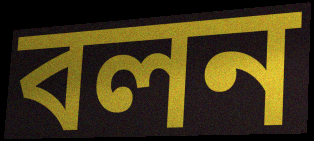
বলন